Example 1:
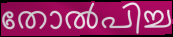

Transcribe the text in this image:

തോൽപിച്ച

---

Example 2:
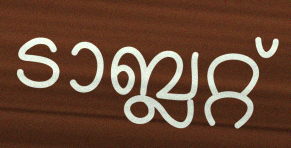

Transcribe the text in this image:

ടാബ്ലറ്റ്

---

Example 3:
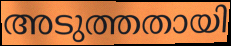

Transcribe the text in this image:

അടുത്തതായി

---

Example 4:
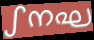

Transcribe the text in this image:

ഽനഘ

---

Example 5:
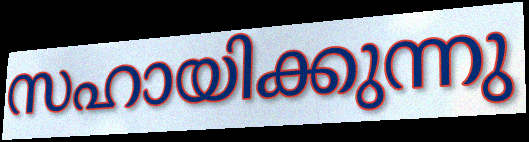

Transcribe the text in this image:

സഹായിക്കുന്നു